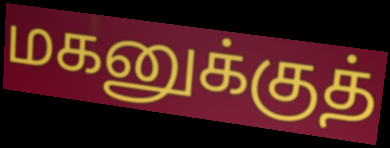
மகனுக்குத்